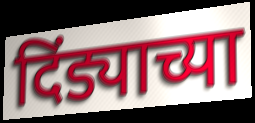
दिंड्याच्या